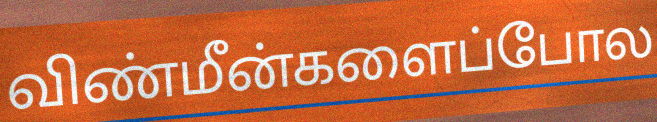
விண்மீன்களைப்போல